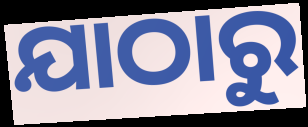
ଯାଠାରୁ